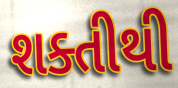
શક્તીથી